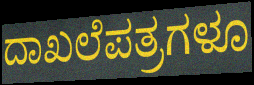
ದಾಖಲೆಪತ್ರಗಳೂ